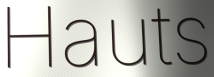
Hauts